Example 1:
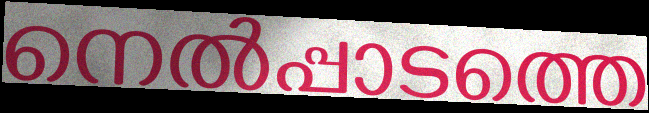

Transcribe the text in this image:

നെൽപ്പാടത്തെ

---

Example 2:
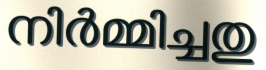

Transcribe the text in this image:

നിർമ്മിച്ചതു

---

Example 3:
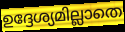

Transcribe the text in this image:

ഉദ്ദേശ്യമില്ലാതെ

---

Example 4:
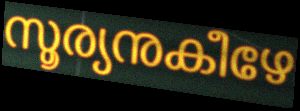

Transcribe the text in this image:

സൂര്യനുകീഴേ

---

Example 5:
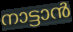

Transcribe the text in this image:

നാട്ടാൻ